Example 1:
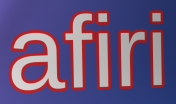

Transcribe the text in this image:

afiri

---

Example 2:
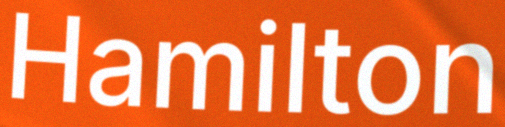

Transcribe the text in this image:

Hamilton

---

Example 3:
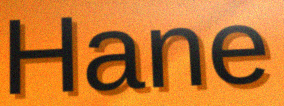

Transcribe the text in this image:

Hane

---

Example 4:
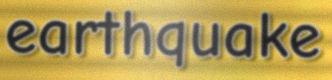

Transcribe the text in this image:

earthquake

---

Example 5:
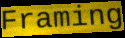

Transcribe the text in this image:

Framing